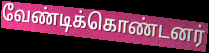
வேண்டிக்கொண்டனர்